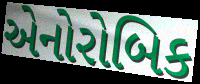
એનોરોબિક